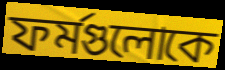
ফর্মগুলোকে